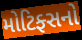
મોટિફ્સનો